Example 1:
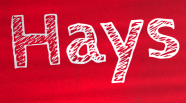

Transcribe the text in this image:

Hays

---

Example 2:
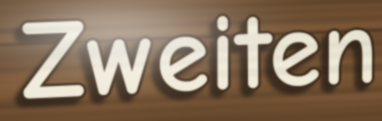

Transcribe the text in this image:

Zweiten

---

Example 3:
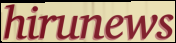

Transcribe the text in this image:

hirunews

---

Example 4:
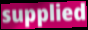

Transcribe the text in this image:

supplied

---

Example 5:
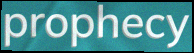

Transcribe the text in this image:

prophecy